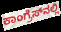
ಕಾಂಗ್ರೆಸ್‌ನಲ್ಲಿ